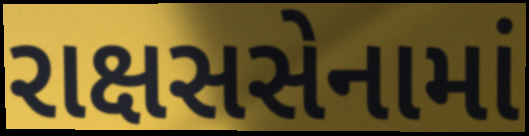
રાક્ષસસેનામાં